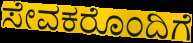
ಸೇವಕರೊಂದಿಗೆ